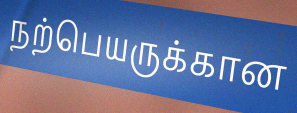
நற்பெயருக்கான